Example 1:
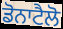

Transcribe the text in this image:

ਡੋਨਾਟੈਲੋ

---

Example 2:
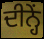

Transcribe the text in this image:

ਦੀਨ੍ਹੇਂ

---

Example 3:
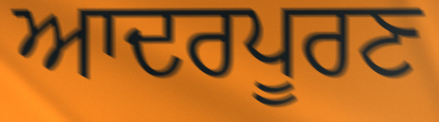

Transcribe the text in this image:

ਆਦਰਪੂਰਣ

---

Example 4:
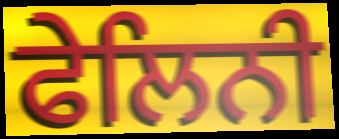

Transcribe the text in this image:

ਫੇਲਿਨੀ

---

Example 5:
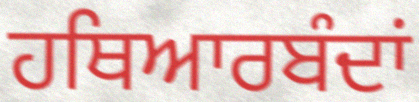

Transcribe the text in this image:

ਹਥਿਆਰਬੰਦਾਂ